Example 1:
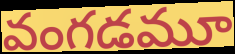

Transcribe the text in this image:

వంగడమూ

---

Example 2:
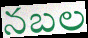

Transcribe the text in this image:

నబల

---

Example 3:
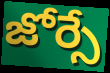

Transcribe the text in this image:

జోర్సే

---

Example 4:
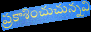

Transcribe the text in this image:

ప్రకాశించుచున్నవి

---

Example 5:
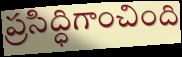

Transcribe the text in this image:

ప్రసిద్ధిగాంచింది